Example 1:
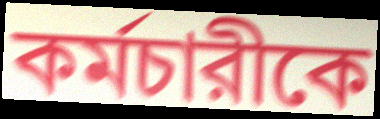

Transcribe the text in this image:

কর্মচারীকে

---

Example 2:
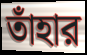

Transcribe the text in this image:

তাঁহার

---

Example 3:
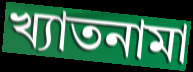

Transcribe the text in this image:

খ্যাতনামা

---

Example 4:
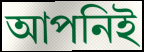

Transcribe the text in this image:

আপনিই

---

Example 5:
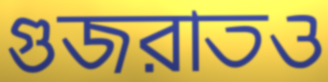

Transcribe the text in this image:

গুজরাতও